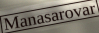
Manasarovar